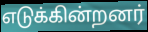
எடுக்கின்றனர்